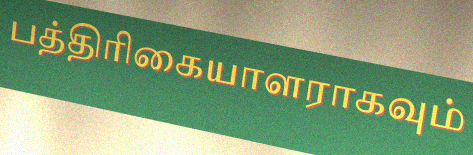
பத்திரிகையாளராகவும்